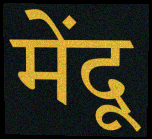
मेंदू